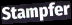
Stampfer